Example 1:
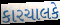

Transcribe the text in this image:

કારચાલકે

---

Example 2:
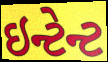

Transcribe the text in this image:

ઇન્ટેન્ટ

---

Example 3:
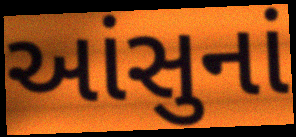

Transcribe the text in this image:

આંસુનાં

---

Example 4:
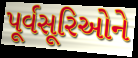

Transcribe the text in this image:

પૂર્વસૂરિઓને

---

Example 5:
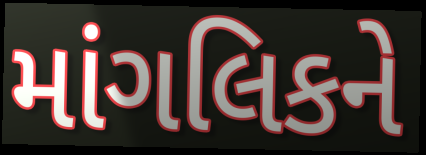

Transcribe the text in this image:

માંગલિકને